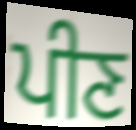
ਪੀਣ